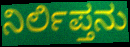
ನಿರ್ಲಿಪ್ತನು